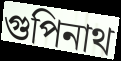
গুপিনাথ